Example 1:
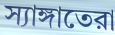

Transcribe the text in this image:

স্যাঙ্গাতেরা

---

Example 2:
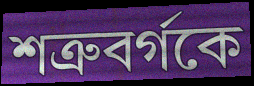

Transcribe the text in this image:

শত্রুবর্গকে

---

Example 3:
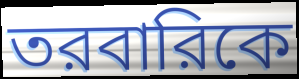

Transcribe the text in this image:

তরবারিকে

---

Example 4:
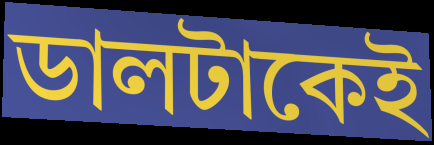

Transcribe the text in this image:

ডালটাকেই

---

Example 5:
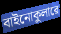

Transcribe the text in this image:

বাইনোকুলারে